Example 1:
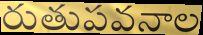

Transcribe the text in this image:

రుతుపవనాల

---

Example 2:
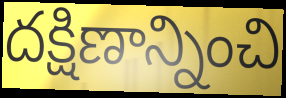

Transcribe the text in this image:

దక్షిణాన్నించి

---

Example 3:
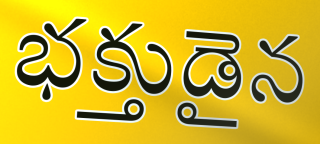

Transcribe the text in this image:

భక్తుడైన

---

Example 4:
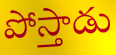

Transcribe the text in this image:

పోస్తాడు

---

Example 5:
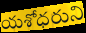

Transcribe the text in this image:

యశోధరుని